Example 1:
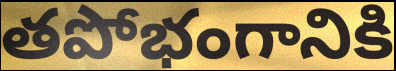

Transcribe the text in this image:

తపోభంగానికి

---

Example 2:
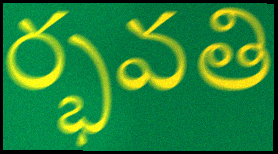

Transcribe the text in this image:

ర్భవతి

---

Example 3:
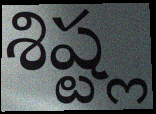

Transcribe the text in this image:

శిష్ట్ల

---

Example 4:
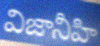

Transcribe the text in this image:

విజానీహి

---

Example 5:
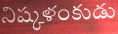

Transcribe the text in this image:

నిష్కళంకుడు